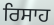
ਰਿਸਾਹ